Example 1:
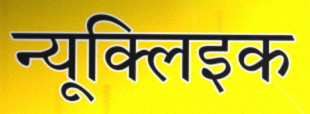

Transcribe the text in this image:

न्यूक्‍लिइक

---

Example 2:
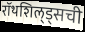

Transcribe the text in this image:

रॉथशिल्ड्सची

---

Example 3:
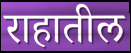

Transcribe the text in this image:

राहातील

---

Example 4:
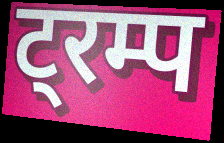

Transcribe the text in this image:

ट्रम्प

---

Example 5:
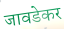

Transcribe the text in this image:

जावडेकर